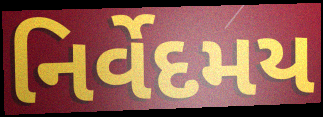
નિર્વેદમય